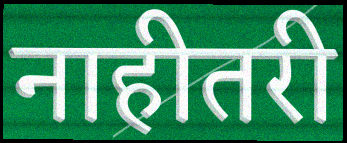
नाहीतरी